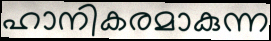
ഹാനികരമാകുന്ന